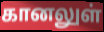
கானலுள்